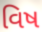
વિષ